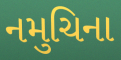
નમુચિના